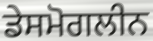
ਡੇਸਮੋਗਲੀਨ